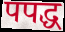
पपद्ध